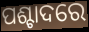
ପଶ୍ଚାଦରେ